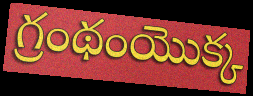
గ్రంథంయొక్క